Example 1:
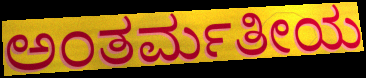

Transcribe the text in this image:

ಅಂತರ್ಮತೀಯ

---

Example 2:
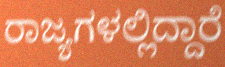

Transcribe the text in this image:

ರಾಜ್ಯಗಳಲ್ಲಿದ್ದಾರೆ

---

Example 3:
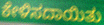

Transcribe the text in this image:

ಕೇಳಿಸದಾಯಿತು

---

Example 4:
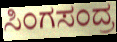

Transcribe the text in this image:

ಸಿಂಗಸಂದ್ರ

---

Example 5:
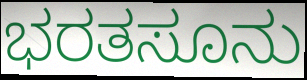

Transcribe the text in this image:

ಭರತಸೂನು